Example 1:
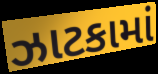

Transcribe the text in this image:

ઝાટકામાં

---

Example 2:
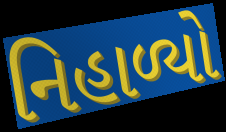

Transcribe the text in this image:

નિહાળ્યો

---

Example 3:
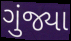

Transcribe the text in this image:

ગુંજ્યા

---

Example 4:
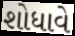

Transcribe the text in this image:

શોધાવે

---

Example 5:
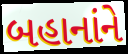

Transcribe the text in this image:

બહાનાંને